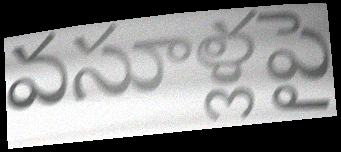
వసూళ్లపై